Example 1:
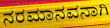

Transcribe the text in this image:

ನರಮಾನವನಾಗಿ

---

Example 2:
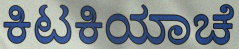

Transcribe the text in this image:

ಕಿಟಕಿಯಾಚೆ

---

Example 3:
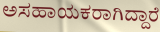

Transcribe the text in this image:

ಅಸಹಾಯಕರಾಗಿದ್ದಾರೆ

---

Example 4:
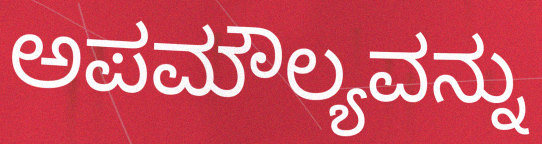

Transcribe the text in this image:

ಅಪಮೌಲ್ಯವನ್ನು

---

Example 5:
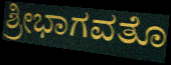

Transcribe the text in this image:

ಶ್ರೀಭಾಗವತೊ